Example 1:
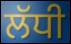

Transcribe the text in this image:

ਲੱਧੀ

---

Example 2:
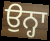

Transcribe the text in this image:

ਉਨ੍ਹਾ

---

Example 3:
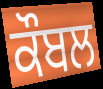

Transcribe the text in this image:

ਕੌਬਲ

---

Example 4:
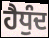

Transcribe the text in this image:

ਹੈਧੁੰਦ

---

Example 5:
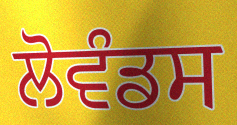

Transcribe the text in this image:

ਲੋਵੰਡਸ